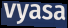
vyasa